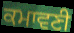
ਕਮਾਵਣੀ